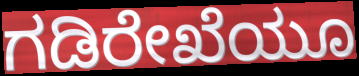
ಗಡಿರೇಖೆಯೂ